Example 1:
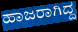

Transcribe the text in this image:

ಹಾಜರಾಗಿದ್ದ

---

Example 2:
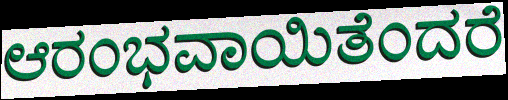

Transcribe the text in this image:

ಆರಂಭವಾಯಿತೆಂದರೆ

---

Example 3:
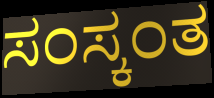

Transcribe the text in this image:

ಸಂಸ್ಕಂತ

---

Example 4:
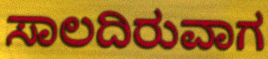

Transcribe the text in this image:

ಸಾಲದಿರುವಾಗ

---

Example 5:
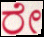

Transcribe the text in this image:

ರೇ